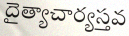
దైత్యాచార్యస్తవ